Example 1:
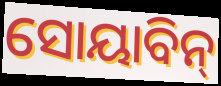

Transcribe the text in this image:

ସୋୟାବିନ୍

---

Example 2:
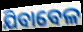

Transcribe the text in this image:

ଯିବାବେଳ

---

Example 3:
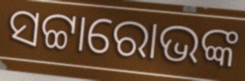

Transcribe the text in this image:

ସଟ୍ଟାରୋଭଙ୍କ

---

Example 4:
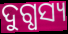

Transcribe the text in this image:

ଦୁଗ୍ଧସ୍ୟ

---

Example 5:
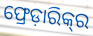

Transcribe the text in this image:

ଫ୍ରେଡ଼ାରିକ୍‍ର